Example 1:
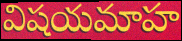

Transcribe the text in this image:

విషయమాహ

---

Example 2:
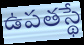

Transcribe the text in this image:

ఉపతస్థే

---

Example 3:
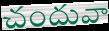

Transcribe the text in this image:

చందువా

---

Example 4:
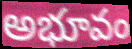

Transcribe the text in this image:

అభూవం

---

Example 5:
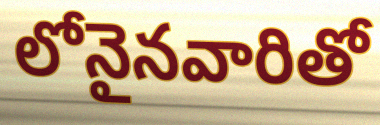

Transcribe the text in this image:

లోనైనవారితో